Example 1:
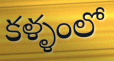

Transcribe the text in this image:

కళ్ళంలో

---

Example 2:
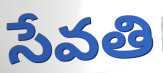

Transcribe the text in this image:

సేవతి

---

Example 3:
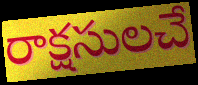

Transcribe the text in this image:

రాక్షసులచే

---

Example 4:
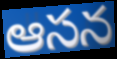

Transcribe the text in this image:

ఆసన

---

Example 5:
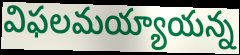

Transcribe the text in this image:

విఫలమయ్యాయన్న